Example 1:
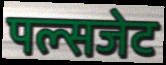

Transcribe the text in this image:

पल्सजेट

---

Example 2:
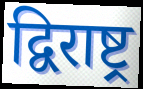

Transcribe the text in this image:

द्विराष्ट्र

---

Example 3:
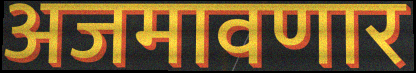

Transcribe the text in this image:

अजमावणार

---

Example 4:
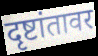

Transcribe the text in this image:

दृष्टांतावर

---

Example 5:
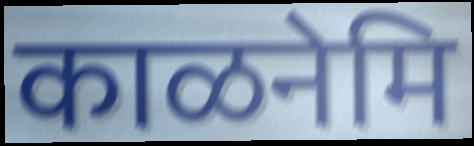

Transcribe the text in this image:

काळनेमि